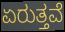
ಏರುತ್ತವೆ